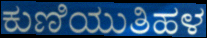
ಕುಣಿಯುತಿಹಳ